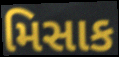
મિસાક